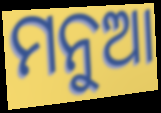
ମନୁଆ